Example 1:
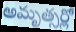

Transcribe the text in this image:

అమృత్సర్లో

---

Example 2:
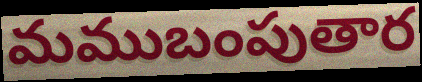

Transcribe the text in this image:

మముబంపుతార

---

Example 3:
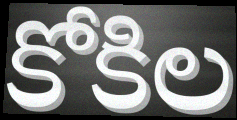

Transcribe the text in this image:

కోకిల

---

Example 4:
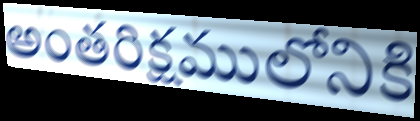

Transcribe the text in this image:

అంతరిక్షములోనికి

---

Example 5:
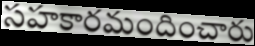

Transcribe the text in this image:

సహకారమందించారు